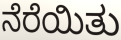
ನೆರೆಯಿತು